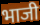
भाजी